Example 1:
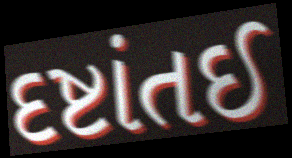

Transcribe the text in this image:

દષ્ટાંતઈ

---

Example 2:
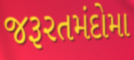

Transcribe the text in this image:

જરૂરતમંદોમા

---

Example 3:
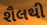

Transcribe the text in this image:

શૈલથી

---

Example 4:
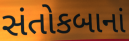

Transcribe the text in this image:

સંતોકબાનાં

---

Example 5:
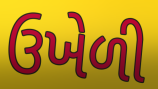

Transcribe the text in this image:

ઉખેળી